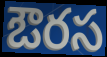
ఔరస